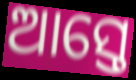
ଆସ୍ତେ